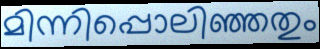
മിന്നിപ്പൊലിഞ്ഞതും